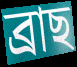
ব্ৰাছ